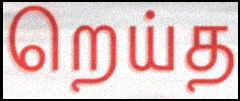
றெய்த